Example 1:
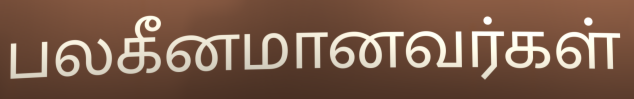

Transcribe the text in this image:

பலகீனமானவர்கள்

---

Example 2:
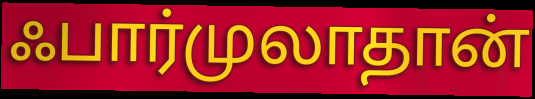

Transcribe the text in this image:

ஃபார்முலாதான்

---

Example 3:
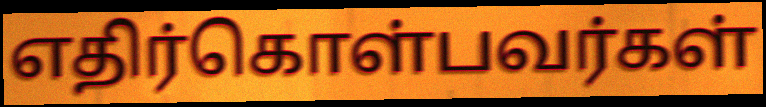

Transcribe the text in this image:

எதிர்கொள்பவர்கள்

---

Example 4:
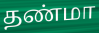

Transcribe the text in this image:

தண்மா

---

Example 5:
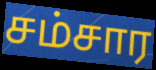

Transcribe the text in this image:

சம்சார